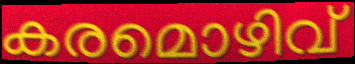
കരമൊഴിവ്